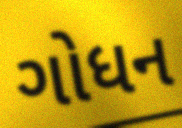
ગોધન